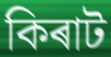
কিৰাট